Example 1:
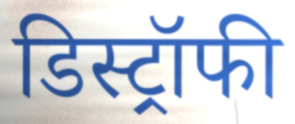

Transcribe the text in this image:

डिस्ट्रॉफी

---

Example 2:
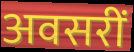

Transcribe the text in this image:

अवसरीं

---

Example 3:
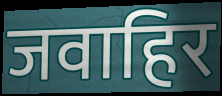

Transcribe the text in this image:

जवाहिर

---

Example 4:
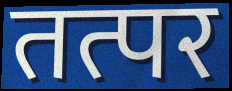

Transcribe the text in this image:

तत्पर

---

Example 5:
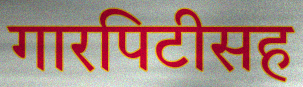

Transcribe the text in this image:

गारपिटीसह